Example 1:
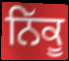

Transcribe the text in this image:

ਨਿੱਕੂ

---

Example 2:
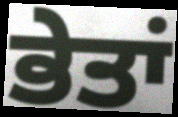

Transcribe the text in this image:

ਭੇਤਾਂ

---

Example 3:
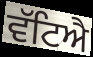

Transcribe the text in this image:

ਵੱਟਿਐ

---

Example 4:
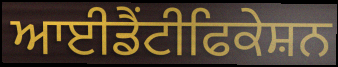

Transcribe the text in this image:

ਆਈਡੈਂਟੀਫਿਕੇਸ਼ਨ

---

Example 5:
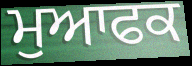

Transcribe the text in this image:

ਮੁਆਫਕ